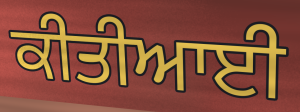
ਕੀਤੀਆਈ